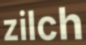
zilch